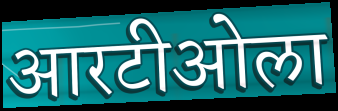
आरटीओला